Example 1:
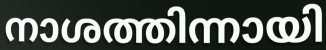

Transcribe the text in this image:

നാശത്തിന്നായി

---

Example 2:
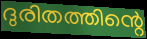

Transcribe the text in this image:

ദുരിതത്തിന്റെ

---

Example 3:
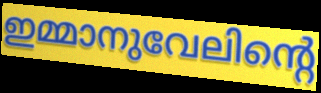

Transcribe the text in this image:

ഇമ്മാനുവേലിന്റെ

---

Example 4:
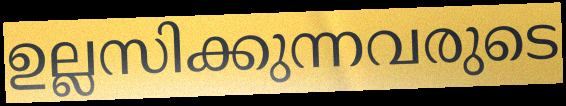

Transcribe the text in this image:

ഉല്ലസിക്കുന്നവരുടെ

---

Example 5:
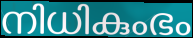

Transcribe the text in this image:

നിധികുംഭം